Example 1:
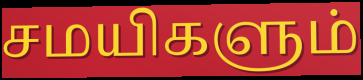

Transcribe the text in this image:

சமயிகளும்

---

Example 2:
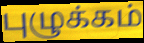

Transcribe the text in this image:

புழுக்கம்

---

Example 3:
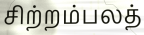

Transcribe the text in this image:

சிற்றம்பலத்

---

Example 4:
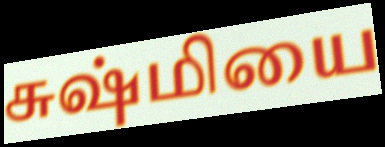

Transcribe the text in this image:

சுஷ்மியை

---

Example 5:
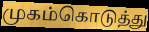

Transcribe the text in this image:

முகம்கொடுத்து